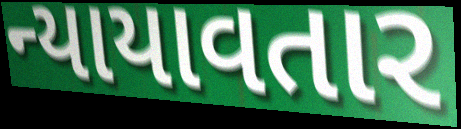
ન્યાયાવતાર